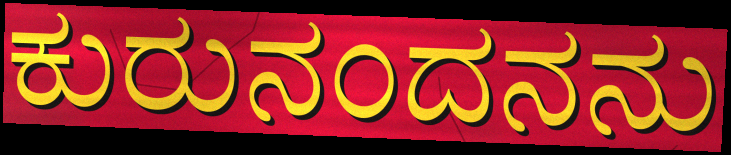
ಕುರುನಂದನನು